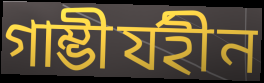
গাম্ভীর্যহীন